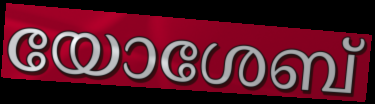
യോശേബ്